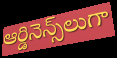
ఆర్డినెన్స్‌లుగా